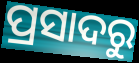
ପ୍ରସାଦରୁ